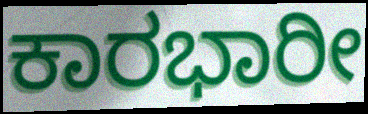
ಕಾರಭಾರೀ